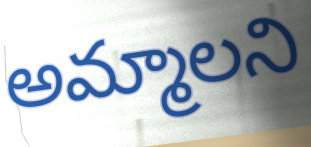
అమ్మాలని